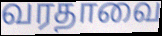
வரதாவை